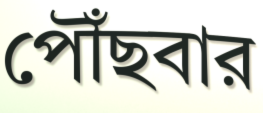
পৌঁছবার